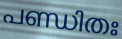
പണ്ഡിതഃ